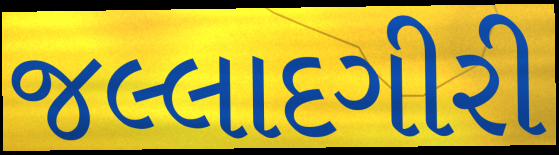
જલ્લાદગીરી